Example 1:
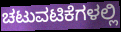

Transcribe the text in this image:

ಚಟುವಟಿಕೆಗಳಲ್ಲಿ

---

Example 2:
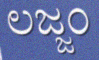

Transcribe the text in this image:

ಲಜ್ಜಂ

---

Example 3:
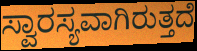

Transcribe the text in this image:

ಸ್ವಾರಸ್ಯವಾಗಿರುತ್ತದೆ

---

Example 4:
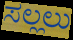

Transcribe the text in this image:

ಸಲ್ಲಲು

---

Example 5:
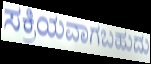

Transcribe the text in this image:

ಸಕ್ರಿಯವಾಗಬಹುದು